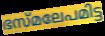
ഭസ്മലേപമിട്ട